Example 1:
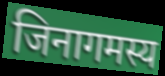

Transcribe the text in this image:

जिनागमस्य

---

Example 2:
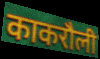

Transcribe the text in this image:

काकरौली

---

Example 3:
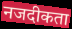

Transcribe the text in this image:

नजदीकता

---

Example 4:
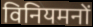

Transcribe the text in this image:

विनियमनों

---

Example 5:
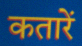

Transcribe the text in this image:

कतारें